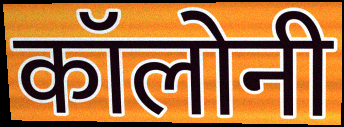
कॉलोनी